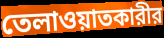
তেলাওয়াতকারীর